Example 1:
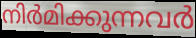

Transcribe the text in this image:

നിർമിക്കുന്നവർ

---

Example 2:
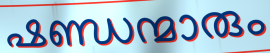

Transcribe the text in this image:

ഷണ്ഡന്മാരും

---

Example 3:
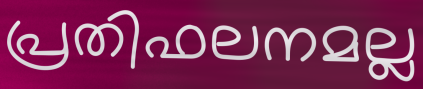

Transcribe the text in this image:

പ്രതിഫലനമല്ല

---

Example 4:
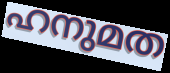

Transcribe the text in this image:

ഹനുമത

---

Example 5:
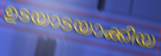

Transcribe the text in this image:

ഉടയാടയാക്കിയ